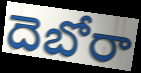
దెబోరా